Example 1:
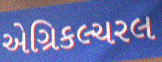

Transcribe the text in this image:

એગ્રિકલ્ચરલ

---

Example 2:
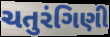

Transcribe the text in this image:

ચતુરંગિણી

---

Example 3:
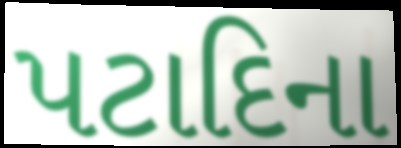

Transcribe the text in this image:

પટાદિના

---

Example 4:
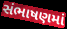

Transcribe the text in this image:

સંભાષણમાં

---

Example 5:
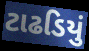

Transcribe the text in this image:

ટાઢડિયું